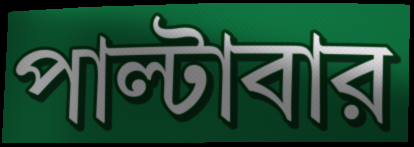
পাল্টাবার